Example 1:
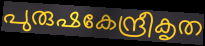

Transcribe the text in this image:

പുരുഷകേന്ദ്രീകൃത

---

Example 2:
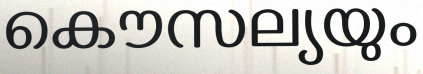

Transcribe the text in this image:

കൌസല്യയും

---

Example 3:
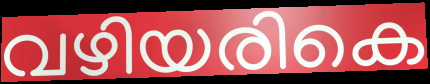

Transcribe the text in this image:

വഴിയരികെ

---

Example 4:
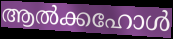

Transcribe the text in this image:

ആൽക്കഹോൾ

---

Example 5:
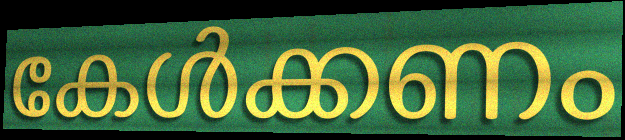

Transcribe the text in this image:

കേൾക്കണം